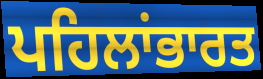
ਪਹਿਲਾਂਭਾਰਤ